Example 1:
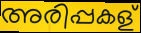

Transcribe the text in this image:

അരിപ്പകള്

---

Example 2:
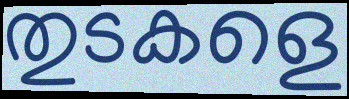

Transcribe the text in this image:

തുടകളെ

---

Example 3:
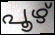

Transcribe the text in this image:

പൂഴ്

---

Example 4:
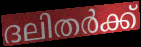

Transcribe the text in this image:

ദലിതർക്ക്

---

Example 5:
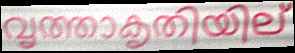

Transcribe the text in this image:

വൃത്താകൃതിയില്